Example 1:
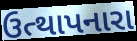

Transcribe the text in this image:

ઉત્થાપનારા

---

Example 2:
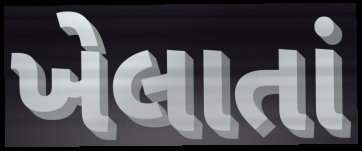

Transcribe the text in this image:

ખેલાતાં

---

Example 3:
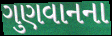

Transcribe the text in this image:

ગુણવાનના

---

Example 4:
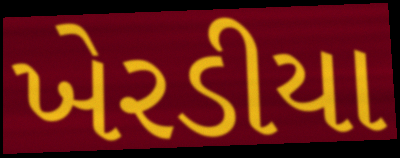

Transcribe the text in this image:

ખેરડીયા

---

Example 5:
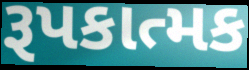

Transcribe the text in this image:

રૂપકાત્મક